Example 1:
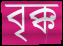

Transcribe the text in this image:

বৃক্ক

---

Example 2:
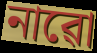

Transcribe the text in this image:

নাৱো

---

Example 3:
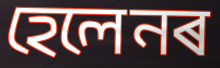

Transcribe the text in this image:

হেলেনৰ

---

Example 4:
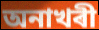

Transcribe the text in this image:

অনাখৰী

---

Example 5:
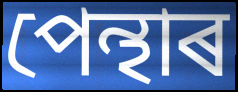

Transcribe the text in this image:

পেন্থাৰ